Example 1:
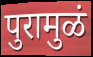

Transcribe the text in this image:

पुरामुळं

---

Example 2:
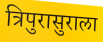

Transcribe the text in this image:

त्रिपुरासुराला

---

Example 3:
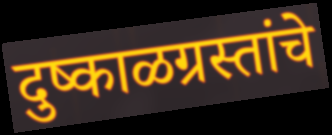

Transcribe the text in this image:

दुष्काळग्रस्तांचे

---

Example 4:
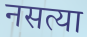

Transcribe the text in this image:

नसत्या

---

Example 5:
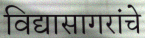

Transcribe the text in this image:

विद्यासागरांचे